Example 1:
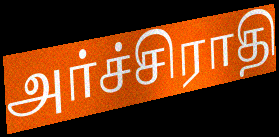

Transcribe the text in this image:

அர்ச்சிராதி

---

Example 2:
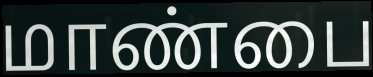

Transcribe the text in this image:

மாண்பை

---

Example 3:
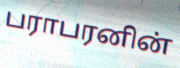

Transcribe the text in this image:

பராபரனின்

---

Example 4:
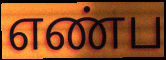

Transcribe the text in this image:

எண்ப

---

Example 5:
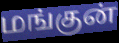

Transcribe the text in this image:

மங்குன்